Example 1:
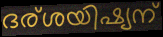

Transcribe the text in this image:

ദര്ശയിഷ്യന്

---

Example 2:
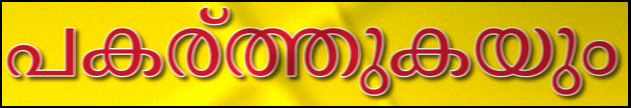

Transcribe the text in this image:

പകര്ത്തുകയും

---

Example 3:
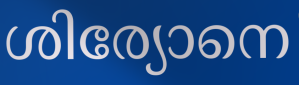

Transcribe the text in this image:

ശിര്യോനെ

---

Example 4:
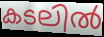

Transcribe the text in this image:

കടലിൽ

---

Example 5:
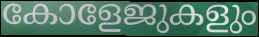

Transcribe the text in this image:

കോളേജുകളും